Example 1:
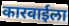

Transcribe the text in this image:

कारवाईला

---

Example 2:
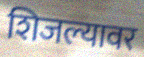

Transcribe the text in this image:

शिजल्यावर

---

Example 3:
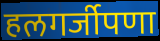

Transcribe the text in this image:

हलगर्जीपणा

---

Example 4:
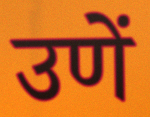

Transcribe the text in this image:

उणें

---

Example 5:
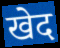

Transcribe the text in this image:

खेद